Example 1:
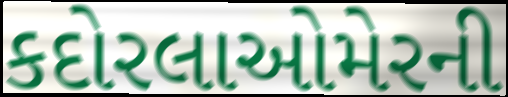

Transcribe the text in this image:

કદોરલાઓમેરની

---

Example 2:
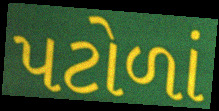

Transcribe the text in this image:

પટોળાં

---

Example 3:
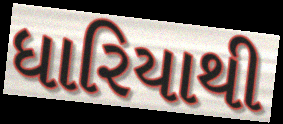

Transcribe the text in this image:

ધારિયાથી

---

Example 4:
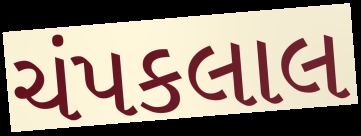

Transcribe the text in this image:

ચંપકલાલ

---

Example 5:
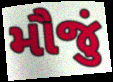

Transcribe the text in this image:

મૌજું